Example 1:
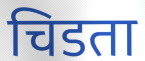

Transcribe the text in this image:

चिडता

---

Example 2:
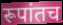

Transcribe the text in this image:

रूपांतच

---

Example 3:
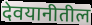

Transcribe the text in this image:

देवयानीतील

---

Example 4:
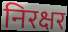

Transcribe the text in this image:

निरक्षर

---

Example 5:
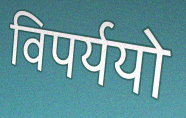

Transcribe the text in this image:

विपर्ययो